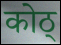
कोठ्